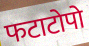
फटाटोपो